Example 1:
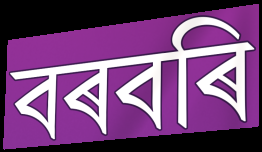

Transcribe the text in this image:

বৰবৰি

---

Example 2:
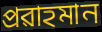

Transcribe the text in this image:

প্ৰৱাহমান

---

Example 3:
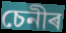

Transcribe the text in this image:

চেনীৰ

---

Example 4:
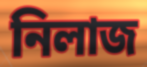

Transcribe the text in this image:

নিলাজ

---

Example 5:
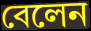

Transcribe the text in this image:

বেলেন